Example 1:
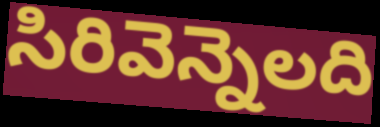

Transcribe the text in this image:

సిరివెన్నెలది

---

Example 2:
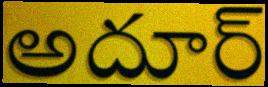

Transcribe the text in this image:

అదూర్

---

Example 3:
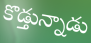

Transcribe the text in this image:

కొడ్తున్నాడు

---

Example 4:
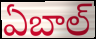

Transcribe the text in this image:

ఏబాల్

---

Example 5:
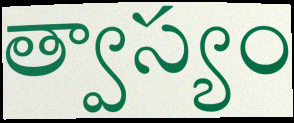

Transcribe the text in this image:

త్వాస్యం